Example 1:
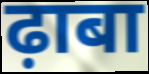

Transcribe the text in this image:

ढ़ाबा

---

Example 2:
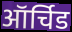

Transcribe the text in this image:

ऑर्चिड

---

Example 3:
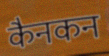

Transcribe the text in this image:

कैनकन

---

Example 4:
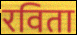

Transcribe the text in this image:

रविता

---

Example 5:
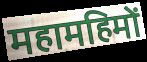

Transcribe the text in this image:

महामहिमों